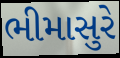
ભીમાસુરે